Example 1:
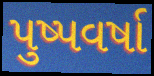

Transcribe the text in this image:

પુષ્પવર્ષા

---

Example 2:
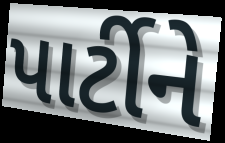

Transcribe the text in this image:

પાર્ટીને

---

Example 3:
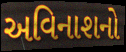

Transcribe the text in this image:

અવિનાશનો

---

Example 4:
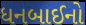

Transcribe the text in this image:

ધનબાઈનો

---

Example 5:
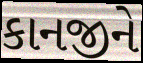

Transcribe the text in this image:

કાનજીને